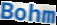
Bohm